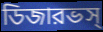
ডিজারভস্